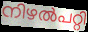
നിഴൽപറ്റി